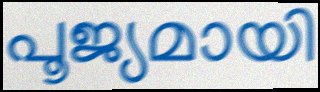
പൂജ്യമായി